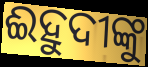
ଈହୁଦୀଙ୍କୁ